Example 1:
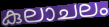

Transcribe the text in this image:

കുലാചലം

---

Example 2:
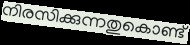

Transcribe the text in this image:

നിരസിക്കുന്നതുകൊണ്ട്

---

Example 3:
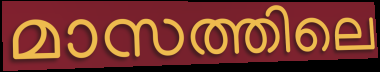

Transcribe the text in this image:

മാസത്തിലെ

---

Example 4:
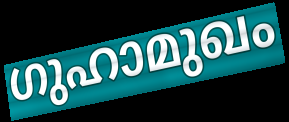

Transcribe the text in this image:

ഗുഹാമുഖം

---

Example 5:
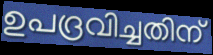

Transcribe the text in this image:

ഉപദ്രവിച്ചതിന്